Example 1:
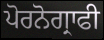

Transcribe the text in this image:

ਪੋਰਨੋਗ੍ਰਾਫੀ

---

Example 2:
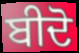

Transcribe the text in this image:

ਬੀਦੋ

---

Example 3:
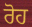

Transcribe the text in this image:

ਰੋਹ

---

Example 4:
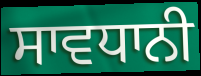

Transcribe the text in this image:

ਸਾਵਧਾਨੀ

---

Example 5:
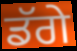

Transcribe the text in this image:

ਡੱਗੇ